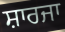
ਸ਼ਾਰਜਾ